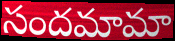
సందమామా